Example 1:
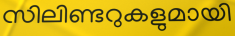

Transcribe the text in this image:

സിലിണ്ടറുകളുമായി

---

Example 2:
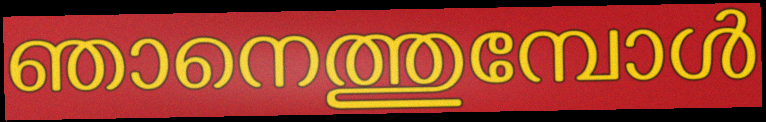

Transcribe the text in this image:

ഞാനെത്തുമ്പോൾ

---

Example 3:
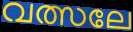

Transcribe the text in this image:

വത്സലേ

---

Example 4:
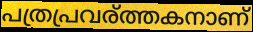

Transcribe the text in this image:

പത്രപ്രവര്ത്തകനാണ്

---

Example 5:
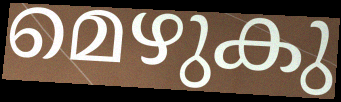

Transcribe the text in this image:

മെഴുകു